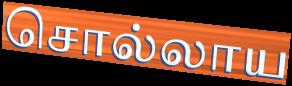
சொல்லாய